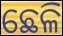
ଛେଳି